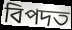
বিপদত